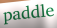
paddle